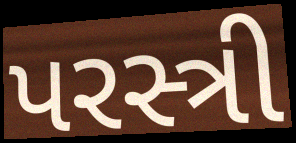
પરસ્ત્રી